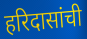
हरिदासांची